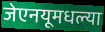
जेएनयूमधल्या